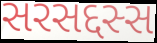
સરસદ્દસ્સ